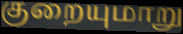
குறையுமாறு